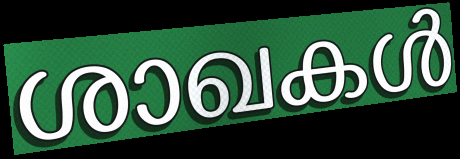
ശാഖകൾ